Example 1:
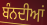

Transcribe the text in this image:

ਬੰਨਦੀਆਂ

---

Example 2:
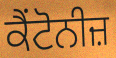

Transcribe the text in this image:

ਕੈਂਟੋਨੀਜ਼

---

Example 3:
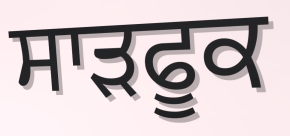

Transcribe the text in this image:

ਸਾੜਫੂਕ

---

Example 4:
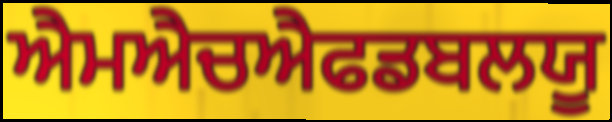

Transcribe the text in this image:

ਐਮਐਚਐਫਡਬਲਯੂ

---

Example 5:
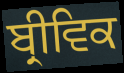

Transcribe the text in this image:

ਬ੍ਰੀਵਿਕ